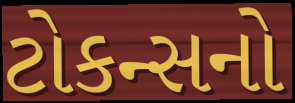
ટોકન્સનો